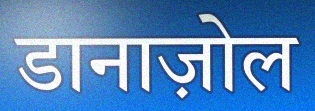
डानाज़ोल